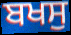
ਬਖਸੁ